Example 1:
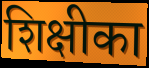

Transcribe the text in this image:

शिक्षीका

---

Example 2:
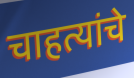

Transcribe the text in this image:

चाहत्यांचे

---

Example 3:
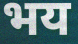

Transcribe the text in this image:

भय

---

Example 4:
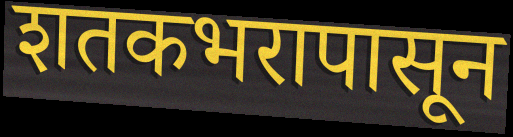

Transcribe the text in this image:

शतकभरापासून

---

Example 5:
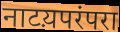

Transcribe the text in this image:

नाटय़परंपरा